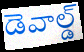
డెవాల్డ్